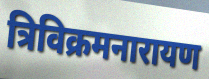
त्रिविक्रमनारायण